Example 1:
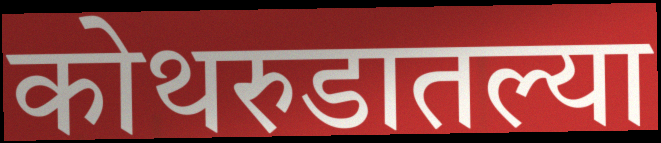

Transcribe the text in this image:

कोथरुडातल्या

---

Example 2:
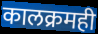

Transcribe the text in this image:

कालक्रमही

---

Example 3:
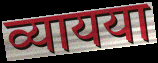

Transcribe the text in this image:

व्यायया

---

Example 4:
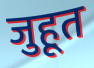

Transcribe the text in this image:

जुहूत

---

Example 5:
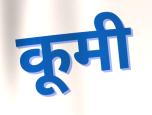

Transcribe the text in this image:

कूमी